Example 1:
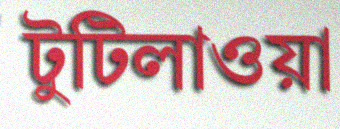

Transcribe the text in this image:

টুটিলাওয়া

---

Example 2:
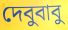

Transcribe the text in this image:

দেবুবাবু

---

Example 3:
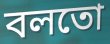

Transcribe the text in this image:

বলতো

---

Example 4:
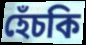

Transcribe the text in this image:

হেঁচকি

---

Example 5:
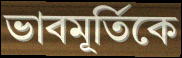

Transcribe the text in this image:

ভাবমূর্তিকে